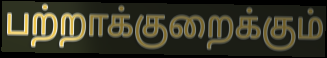
பற்றாக்குறைக்கும்